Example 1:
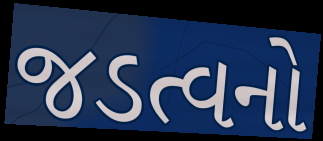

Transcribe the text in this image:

જડત્વનો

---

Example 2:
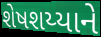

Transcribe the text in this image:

શેષશય્યાને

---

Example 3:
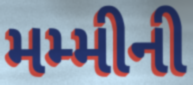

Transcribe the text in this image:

મમ્મીની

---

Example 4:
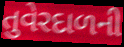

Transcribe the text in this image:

તુવેરદાળની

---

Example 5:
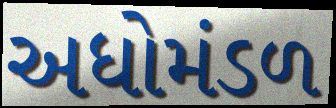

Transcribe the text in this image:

અધોમંડળ